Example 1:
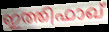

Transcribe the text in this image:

ഇത്തിഫാഖ്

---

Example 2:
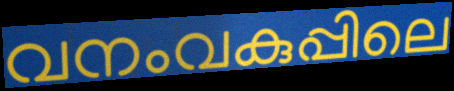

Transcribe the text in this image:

വനംവകുപ്പിലെ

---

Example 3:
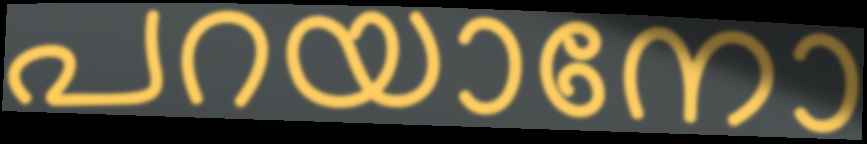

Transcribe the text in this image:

പറയാനോ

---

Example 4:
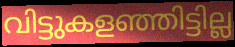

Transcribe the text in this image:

വിട്ടുകളഞ്ഞിട്ടില്ല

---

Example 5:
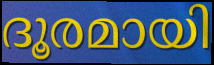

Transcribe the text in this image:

ദൂരമായി